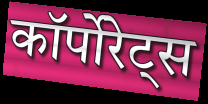
कॉर्पोरेट्स